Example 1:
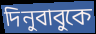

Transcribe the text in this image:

দিনুবাবুকে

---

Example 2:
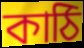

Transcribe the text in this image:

কাঠি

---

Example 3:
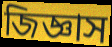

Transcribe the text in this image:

জিজ্ঞাস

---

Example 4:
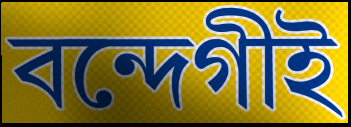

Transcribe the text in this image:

বন্দেগীই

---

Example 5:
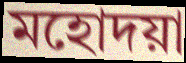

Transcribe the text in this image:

মহোদয়া